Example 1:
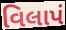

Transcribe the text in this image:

વિલાપં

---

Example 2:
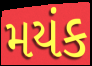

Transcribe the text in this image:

મયંક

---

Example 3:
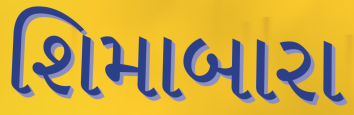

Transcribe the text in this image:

શિમાબારા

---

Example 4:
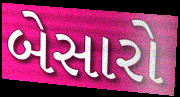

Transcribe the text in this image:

બેસારો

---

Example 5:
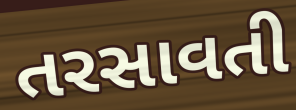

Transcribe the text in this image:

તરસાવતી